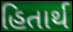
હિતાર્થ